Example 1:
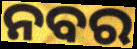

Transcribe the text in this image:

ନବର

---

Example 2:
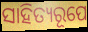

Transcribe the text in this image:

ସାହିତ୍ୟରୂପେ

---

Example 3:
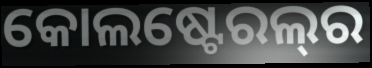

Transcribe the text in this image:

କୋଲଷ୍ଟେରଲ୍‌ର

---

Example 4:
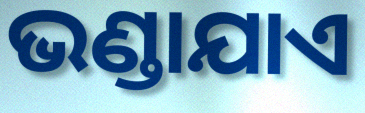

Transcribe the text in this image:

ଭଣ୍ଡାଯାଏ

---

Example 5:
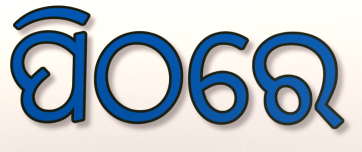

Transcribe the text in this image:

ପିଠରେ